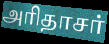
அரிதாசர்